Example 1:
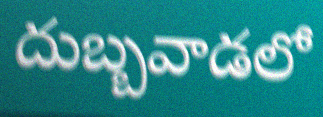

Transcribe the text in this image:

దుబ్బవాడలో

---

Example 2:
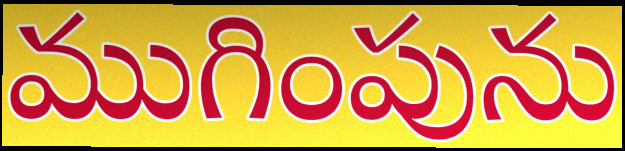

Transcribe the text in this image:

ముగింపును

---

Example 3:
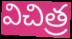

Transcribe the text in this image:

విచిత్ర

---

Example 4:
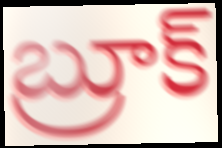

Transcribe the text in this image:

బ్రూక్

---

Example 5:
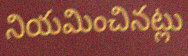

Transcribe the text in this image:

నియమించినట్లు